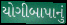
યોગીબાપાનું